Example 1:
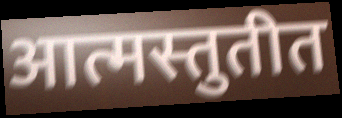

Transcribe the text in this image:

आत्मस्तुतीत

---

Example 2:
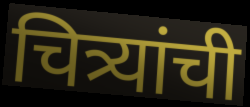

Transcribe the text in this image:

चित्र्यांची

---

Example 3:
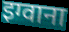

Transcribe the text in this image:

इग्वाना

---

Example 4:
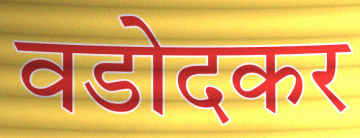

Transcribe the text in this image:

वडोदकर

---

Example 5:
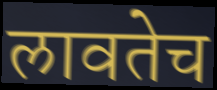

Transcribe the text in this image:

लावतेच